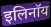
इलिनॉय